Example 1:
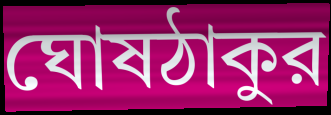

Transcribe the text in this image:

ঘোষঠাকুর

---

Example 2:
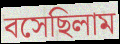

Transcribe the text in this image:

বসেছিলাম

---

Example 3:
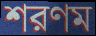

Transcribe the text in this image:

শরণম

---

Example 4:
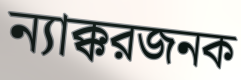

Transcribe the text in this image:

ন্যাক্করজনক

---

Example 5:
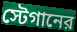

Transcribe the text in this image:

স্টেগানের